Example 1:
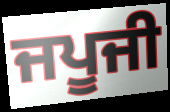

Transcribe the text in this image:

ਜਪੂਜੀ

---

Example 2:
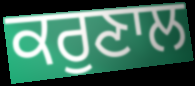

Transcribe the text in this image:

ਕਰੁਣਾਲ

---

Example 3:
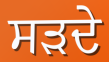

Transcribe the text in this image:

ਸੜਦੇ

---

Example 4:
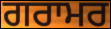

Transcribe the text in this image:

ਗਰਾਮਰ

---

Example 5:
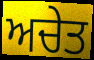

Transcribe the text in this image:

ਅਚੇਤ